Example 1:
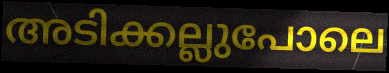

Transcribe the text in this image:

അടിക്കല്ലുപോലെ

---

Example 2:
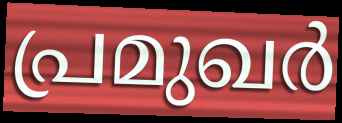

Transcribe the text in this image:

പ്രമുഖർ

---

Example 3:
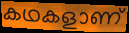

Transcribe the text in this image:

കഥകളാണ്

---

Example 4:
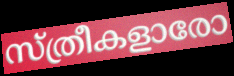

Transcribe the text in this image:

സ്ത്രീകളാരോ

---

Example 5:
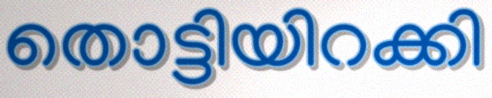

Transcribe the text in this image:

തൊട്ടിയിറക്കി